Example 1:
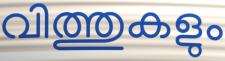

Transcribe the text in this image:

വിത്തുകളും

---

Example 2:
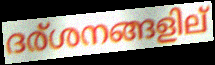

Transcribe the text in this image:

ദര്ശനങ്ങളില്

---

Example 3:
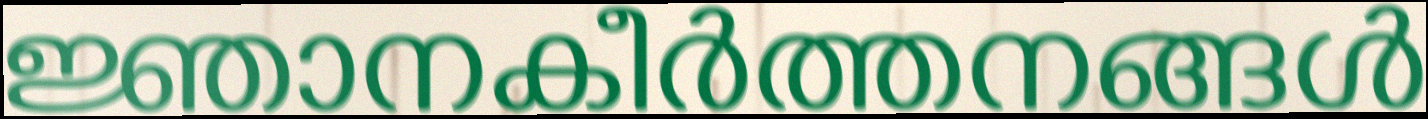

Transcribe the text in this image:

ജ്ഞാനകീർത്തനങ്ങൾ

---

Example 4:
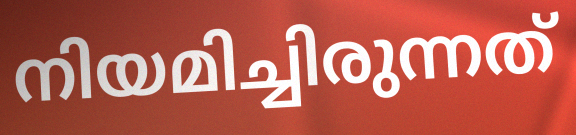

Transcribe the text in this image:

നിയമിച്ചിരുന്നത്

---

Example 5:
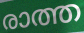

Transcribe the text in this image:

രാത്ത